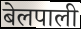
बेलपाली